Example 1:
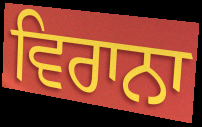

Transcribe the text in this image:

ਵਿਰਾਨਾ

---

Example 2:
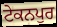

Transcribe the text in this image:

ਟੇਕਨਪੁਰ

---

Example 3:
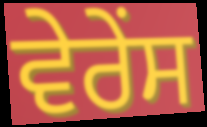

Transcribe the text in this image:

ਵੇਰੇਂਸ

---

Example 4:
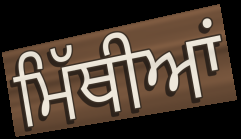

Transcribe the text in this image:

ਮਿੱਥੀਆਂ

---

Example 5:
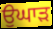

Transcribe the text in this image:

ਉਘਾੜ